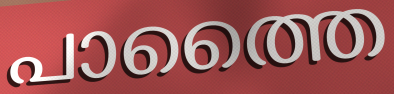
പാത്തൈ